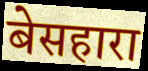
बेसहारा